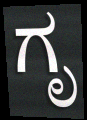
ಗೃ